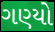
ગણ્યો